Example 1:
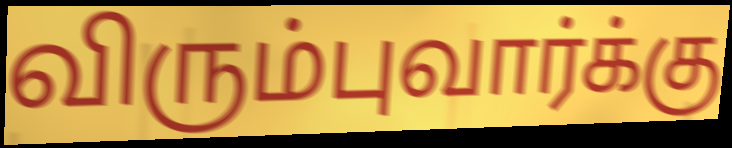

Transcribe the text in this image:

விரும்புவார்க்கு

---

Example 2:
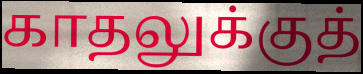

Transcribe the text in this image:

காதலுக்குத்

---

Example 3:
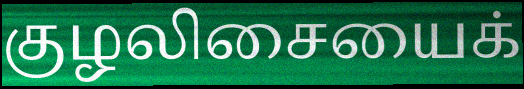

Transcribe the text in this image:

குழலிசையைக்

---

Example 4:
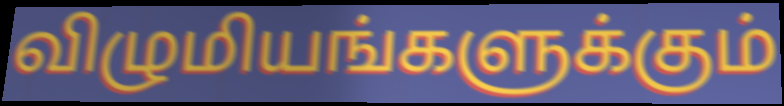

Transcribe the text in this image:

விழுமியங்களுக்கும்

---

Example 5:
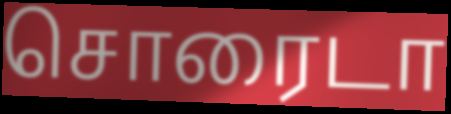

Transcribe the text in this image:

சொரைடா